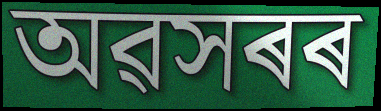
অৱসৰৰ